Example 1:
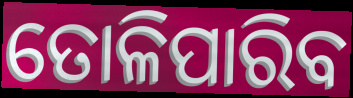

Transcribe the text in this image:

ତୋଳିପାରିବ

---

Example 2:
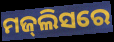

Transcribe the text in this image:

ମଜ୍‍ଲିସରେ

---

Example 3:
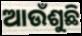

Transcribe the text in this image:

ଆଉଁଶୁଛି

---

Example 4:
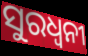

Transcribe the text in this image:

ସୁରଧ୍ୱନୀ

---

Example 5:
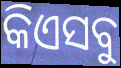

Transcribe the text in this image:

କିଏସବୁ